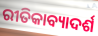
ରୀତିକାବ୍ୟାଦର୍ଶ